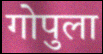
गोपुला